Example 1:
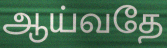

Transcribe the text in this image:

ஆய்வதே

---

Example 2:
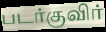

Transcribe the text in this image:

படர்குவிர்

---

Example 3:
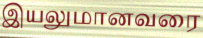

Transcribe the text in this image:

இயலுமானவரை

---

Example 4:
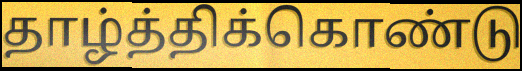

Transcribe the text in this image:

தாழ்த்திக்கொண்டு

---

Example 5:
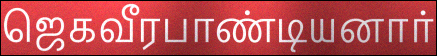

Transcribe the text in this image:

ஜெகவீரபாண்டியனார்